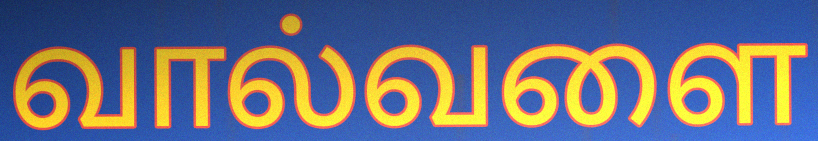
வால்வளை